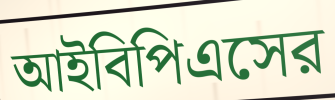
আইবিপিএসের